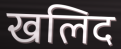
खलिद